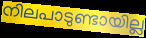
നിലപാടുണ്ടായില്ല